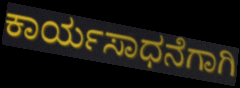
ಕಾರ್ಯಸಾಧನೆಗಾಗಿ